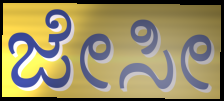
ಜೇಸೀ